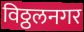
विठ्ठलनगर